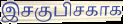
இசகுபிசகாக